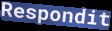
Respondit